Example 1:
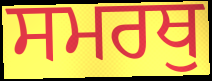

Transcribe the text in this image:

ਸਮਰਥੁ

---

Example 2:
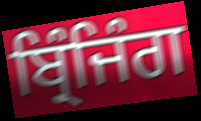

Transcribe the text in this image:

ਬ੍ਰਿੰਜਿੰਗ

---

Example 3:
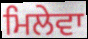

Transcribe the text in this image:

ਮਿਲੇਵਾ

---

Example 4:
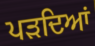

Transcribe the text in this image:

ਪੜਦਿਆਂ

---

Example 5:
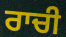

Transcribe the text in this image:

ਰਾਚੀ